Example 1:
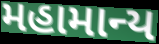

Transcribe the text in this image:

મહામાન્ય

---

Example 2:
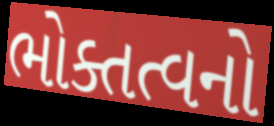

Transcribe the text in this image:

ભોક્તત્વનો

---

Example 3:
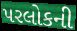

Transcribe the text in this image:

પરલોકની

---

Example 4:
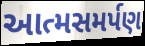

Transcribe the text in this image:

આત્મસમર્પણ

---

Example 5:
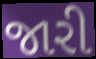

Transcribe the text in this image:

જારી